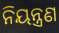
ନିୟନ୍ତ୍ରଣ